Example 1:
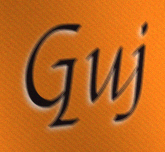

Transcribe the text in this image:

Guj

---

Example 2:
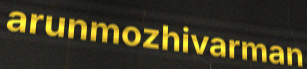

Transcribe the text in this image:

arunmozhivarman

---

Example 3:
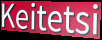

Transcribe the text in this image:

Keitetsi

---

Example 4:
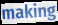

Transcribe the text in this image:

making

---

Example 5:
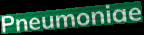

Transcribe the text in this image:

Pneumoniae